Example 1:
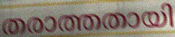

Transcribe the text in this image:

തരാത്തതായി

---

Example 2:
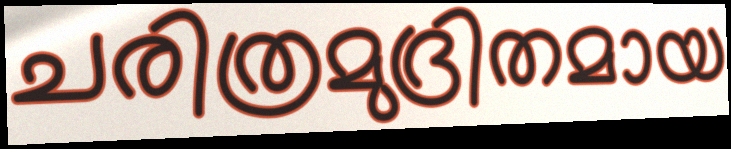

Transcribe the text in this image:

ചരിത്രമുദ്രിതമായ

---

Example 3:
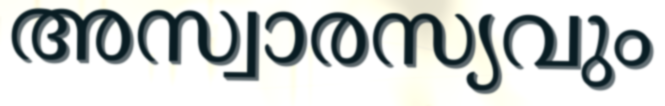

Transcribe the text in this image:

അസ്വാരസ്യവും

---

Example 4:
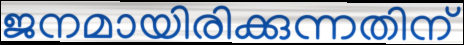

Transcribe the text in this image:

ജനമായിരിക്കുന്നതിന്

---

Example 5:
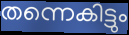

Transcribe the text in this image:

തന്നെകിട്ടും